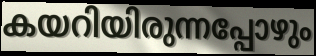
കയറിയിരുന്നപ്പോഴും